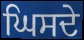
ਘਿਸਦੇ